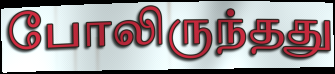
போலிருந்தது